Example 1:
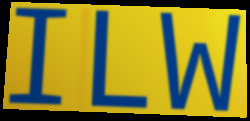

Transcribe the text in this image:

ILW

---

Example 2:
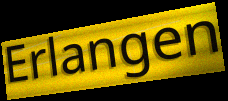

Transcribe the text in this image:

Erlangen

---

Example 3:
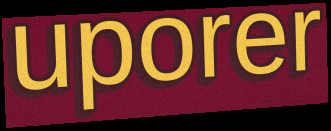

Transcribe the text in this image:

uporer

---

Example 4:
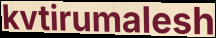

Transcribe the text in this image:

kvtirumalesh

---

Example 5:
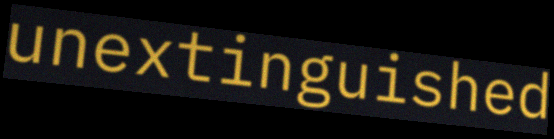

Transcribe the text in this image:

unextinguished